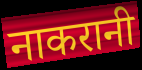
नाकरानी